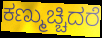
ಕಣ್ಮುಚ್ಚಿದರೆ